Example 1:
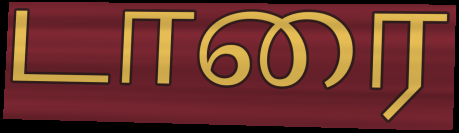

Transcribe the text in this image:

டாரை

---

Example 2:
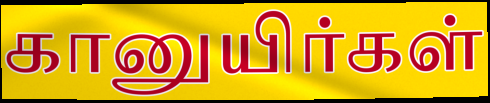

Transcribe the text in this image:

கானுயிர்கள்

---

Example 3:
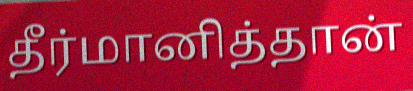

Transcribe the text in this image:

தீர்மானித்தான்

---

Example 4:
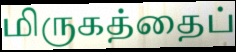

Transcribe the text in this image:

மிருகத்தைப்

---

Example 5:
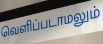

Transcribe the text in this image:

வெளிப்படாமலும்